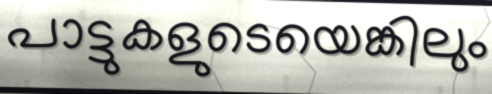
പാട്ടുകളുടെയെങ്കിലും